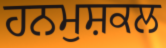
ਹਨਮੁਸ਼ਕਲ